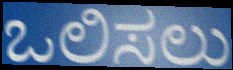
ಒಲಿಸಲು